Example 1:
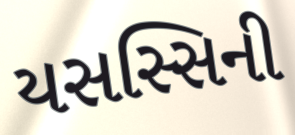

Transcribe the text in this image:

યસસ્સિની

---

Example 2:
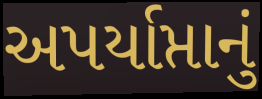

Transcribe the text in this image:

અપર્યાપ્તાનું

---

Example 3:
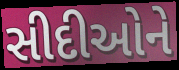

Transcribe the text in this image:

સીદીઓને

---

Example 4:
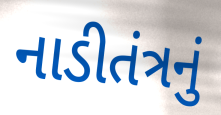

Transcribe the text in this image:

નાડીતંત્રનું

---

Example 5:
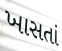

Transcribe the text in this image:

ખાસતાં